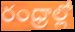
రంధ్రాల్లో